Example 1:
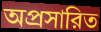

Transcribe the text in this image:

অপ্রসারিত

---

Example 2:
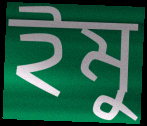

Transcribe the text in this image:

ইমু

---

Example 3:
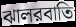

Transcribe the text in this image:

ঝালরবাতি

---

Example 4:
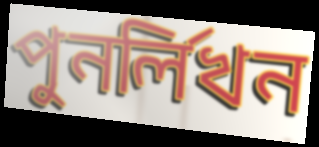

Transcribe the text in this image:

পুনর্লিখন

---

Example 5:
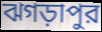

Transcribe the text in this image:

ঝগড়াপুর